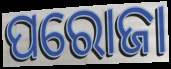
ପରୋଜା